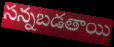
సన్నబడతాయి